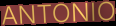
ANTONIO